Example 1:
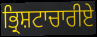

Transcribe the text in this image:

ਭ੍ਰਿਸ਼ਟਾਚਾਰੀਏ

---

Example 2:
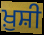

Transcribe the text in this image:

ਖ਼ੁਸ਼ੀ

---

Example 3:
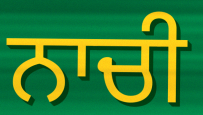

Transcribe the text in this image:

ਨਾਚੀ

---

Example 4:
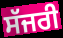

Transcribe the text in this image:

ਸੱਜਰੀ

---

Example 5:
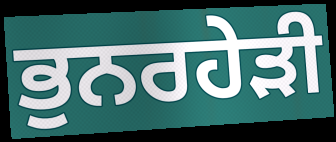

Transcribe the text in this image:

ਭੁਨਰਹੇੜੀ